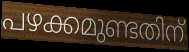
പഴക്കമുണ്ടതിന്